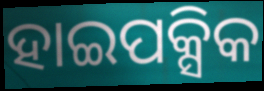
ହାଇପକ୍ସିକ